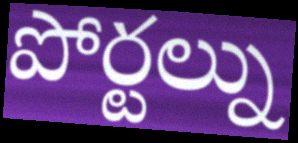
పోర్టల్ను